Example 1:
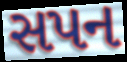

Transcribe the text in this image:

સપન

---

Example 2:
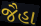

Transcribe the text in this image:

જૈહા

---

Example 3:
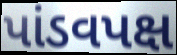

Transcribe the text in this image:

પાંડવપક્ષ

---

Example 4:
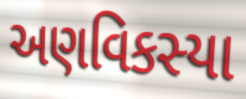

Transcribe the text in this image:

અણવિકસ્યા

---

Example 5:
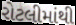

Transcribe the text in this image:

રોટલીમાંથી